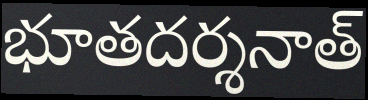
భూతదర్శనాత్